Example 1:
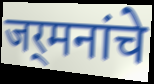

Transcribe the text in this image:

जर्मनांचे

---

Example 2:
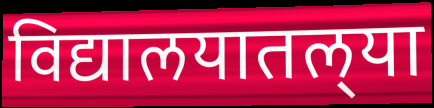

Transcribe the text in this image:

विद्यालयातल्या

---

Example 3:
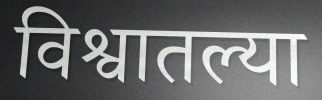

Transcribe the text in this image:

विश्वातल्या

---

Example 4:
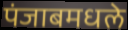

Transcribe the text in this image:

पंजाबमधले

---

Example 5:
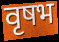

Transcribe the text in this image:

वृषभ